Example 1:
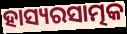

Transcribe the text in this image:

ହାସ୍ୟରସାତ୍ମକ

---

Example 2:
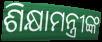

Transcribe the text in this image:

ଶିକ୍ଷାମନ୍ତ୍ରୀଙ୍କ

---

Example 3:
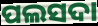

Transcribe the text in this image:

ପଲସଦା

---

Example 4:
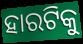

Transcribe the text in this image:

ହାରଟିକୁ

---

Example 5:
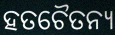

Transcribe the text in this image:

ହତଚୈତନ୍ୟ